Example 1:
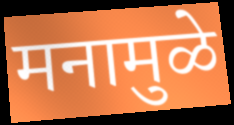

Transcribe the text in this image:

मनामुळे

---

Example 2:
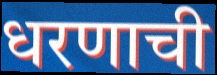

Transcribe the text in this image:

धरणाची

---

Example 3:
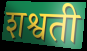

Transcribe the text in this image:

शश्वती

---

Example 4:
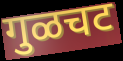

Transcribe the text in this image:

गुळचट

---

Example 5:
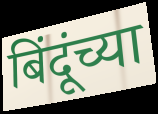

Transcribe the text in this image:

बिंदूंच्या